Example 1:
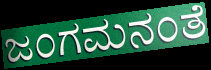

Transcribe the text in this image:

ಜಂಗಮನಂತೆ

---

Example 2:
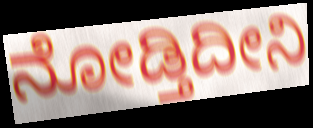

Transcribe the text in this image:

ನೋಡ್ತಿದೀನಿ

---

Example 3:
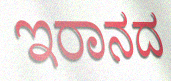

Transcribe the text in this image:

ಇರಾನದ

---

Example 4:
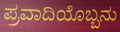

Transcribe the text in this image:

ಪ್ರವಾದಿಯೊಬ್ಬನು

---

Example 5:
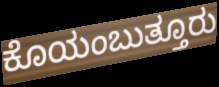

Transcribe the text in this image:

ಕೊಯಂಬುತ್ತೂರು